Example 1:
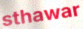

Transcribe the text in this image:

sthawar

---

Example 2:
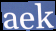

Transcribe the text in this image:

aek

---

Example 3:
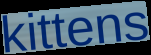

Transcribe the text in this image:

kittens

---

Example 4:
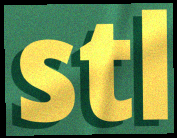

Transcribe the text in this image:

stl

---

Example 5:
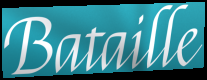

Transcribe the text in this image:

Bataille